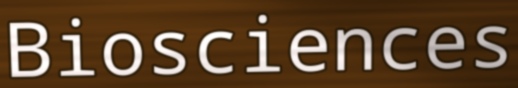
Biosciences